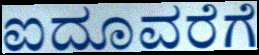
ಐದೂವರೆಗೆ